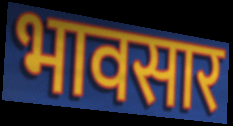
भावसार